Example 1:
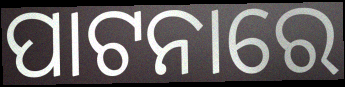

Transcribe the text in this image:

ପାଟନାରେ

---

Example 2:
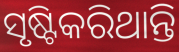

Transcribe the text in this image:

ସୃଷ୍ଟିକରିଥାନ୍ତି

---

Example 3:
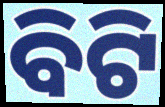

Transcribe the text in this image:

ବିଟି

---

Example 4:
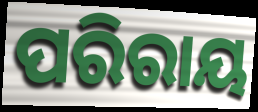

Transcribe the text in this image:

ପରିରାୟ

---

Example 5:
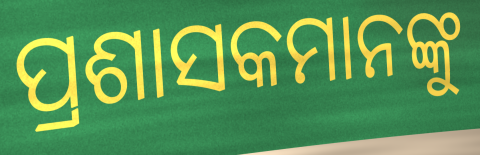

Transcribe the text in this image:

ପ୍ରଶାସକମାନଙ୍କୁ